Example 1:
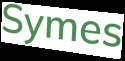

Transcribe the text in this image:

Symes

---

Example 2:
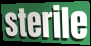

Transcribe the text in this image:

sterile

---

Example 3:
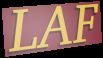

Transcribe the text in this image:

LAF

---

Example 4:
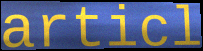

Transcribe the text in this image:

articl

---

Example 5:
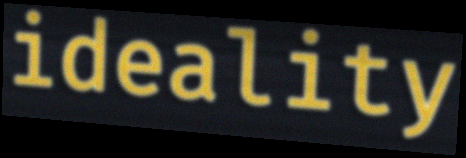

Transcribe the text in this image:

ideality